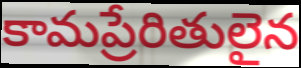
కామప్రేరితులైన